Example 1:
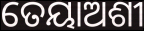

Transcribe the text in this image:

ତେୟାଅଶୀ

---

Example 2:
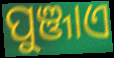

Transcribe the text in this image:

ପୁଞ୍ଜାଏ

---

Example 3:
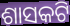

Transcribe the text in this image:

ଶାସକଟି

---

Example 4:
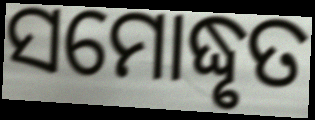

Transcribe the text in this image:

ସମୋଦ୍ଧୃତ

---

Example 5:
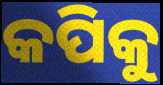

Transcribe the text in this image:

କପିକୁ